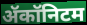
ॲकॉनिटम